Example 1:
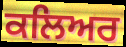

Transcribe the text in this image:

ਕਲਿਅਰ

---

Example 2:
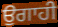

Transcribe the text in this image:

ਉਗਾਹੀ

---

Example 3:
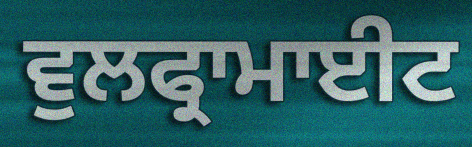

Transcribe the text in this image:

ਵੁਲਫ੍ਰਾਮਾਈਟ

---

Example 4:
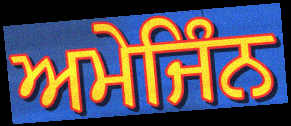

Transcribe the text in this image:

ਅਮੇਜਿੰਨ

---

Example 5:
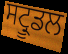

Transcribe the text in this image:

ਸਟ੍ਰੂਡਲ